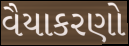
વૈયાકરણો